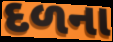
દળના